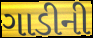
ગાડીની